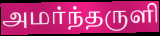
அமர்ந்தருளி